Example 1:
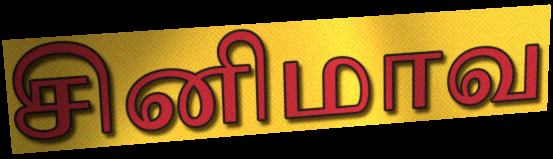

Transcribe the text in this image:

சினிமாவ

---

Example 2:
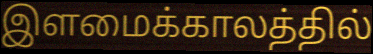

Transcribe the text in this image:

இளமைக்காலத்தில்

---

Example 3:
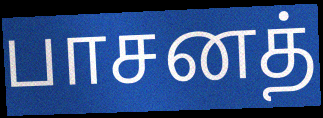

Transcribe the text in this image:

பாசனத்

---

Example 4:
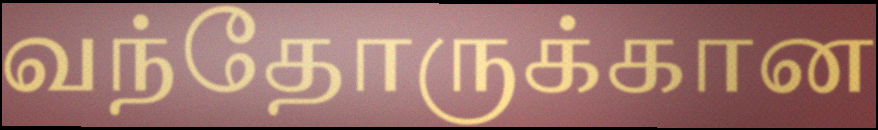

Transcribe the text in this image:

வந்தோருக்கான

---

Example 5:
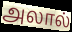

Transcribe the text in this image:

அலால்